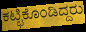
ಕಟ್ಟಿಕೊಂಡಿದ್ದರು